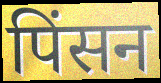
पिंसन